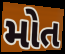
મોત